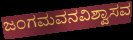
ಜಂಗಮವನವಿಶ್ವಾಸವ